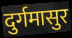
दुर्गमासुर